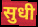
सुधी